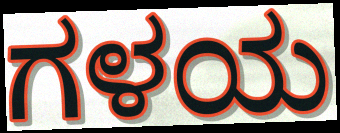
ಗಳಯ